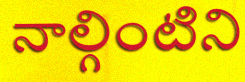
నాల్గింటిని